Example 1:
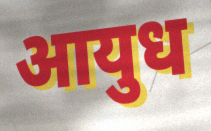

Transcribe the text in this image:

आयुध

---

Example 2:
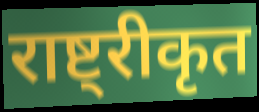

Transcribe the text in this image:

राष्ट्रीकृत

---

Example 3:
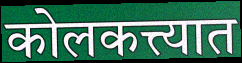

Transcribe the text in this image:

कोलकत्त्यात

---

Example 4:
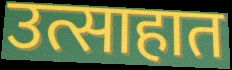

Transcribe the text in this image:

उत्साहात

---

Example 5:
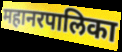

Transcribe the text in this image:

महानरपालिका